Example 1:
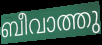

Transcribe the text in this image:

ബീവാത്തു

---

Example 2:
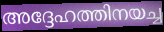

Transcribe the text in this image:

അദ്ദേഹത്തിനയച്ച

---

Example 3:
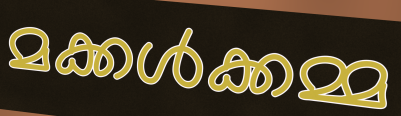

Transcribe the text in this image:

മക്കൾക്കമ്മ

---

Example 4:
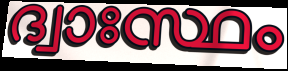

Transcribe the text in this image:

ദ്വാഃസ്ഥം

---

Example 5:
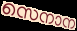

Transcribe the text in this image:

സെനാന